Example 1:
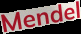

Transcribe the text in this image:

Mendel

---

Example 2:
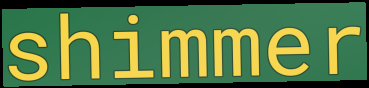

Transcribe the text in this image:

shimmer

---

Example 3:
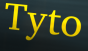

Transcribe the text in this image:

Tyto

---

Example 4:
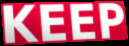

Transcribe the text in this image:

KEEP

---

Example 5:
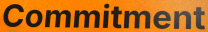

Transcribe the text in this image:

Commitment